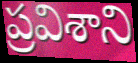
ప్రవిశాని